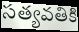
సత్యవతికి